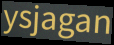
ysjagan